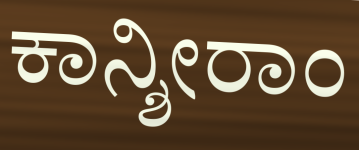
ಕಾನ್ಶೀರಾಂ